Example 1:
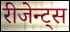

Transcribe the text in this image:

रीजेन्ट्स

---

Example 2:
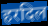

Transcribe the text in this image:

हरदिल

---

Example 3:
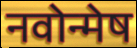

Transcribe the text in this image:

नवोन्‍मेष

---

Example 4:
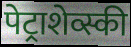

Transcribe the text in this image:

पेट्राशेव्स्की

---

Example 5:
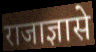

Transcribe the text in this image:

राजाज्ञासे